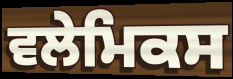
ਵਲੇਮਿਕਸ